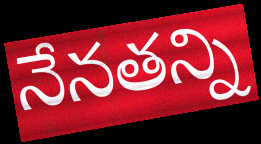
నేనతన్ని